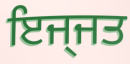
ਇਜ੍ਜਤ